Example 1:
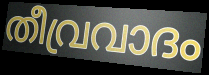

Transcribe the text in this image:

തീവ്രവാദം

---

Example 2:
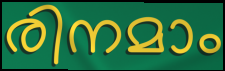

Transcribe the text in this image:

രിനമാം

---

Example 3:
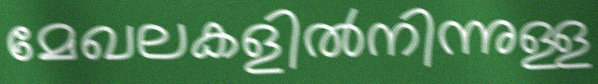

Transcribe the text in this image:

മേഖലകളിൽനിന്നുള്ള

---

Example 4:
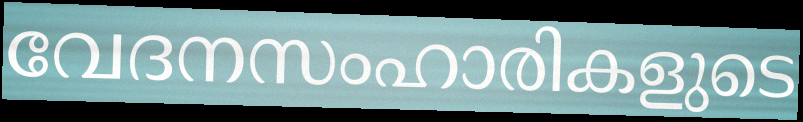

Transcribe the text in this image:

വേദനസംഹാരികളുടെ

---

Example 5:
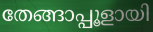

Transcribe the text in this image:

തേങ്ങാപ്പൂളായി